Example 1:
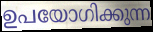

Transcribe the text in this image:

ഉപയോഗിക്കുന്ന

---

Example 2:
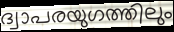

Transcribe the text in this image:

ദ്വാപരയുഗത്തിലും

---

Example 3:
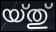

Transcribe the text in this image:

യ്തു്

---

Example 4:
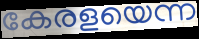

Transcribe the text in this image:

കേരളയെന്ന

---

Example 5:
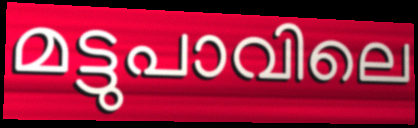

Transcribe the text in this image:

മട്ടുപാവിലെ